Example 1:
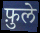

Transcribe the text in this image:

फ़ुले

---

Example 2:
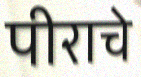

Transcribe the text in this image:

पीराचे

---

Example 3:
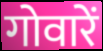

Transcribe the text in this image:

गोवारें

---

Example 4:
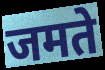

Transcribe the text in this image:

जमते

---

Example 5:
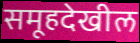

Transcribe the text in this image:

समूहदेखील